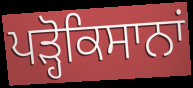
ਪੜ੍ਹੋਕਿਸਾਨਾਂ